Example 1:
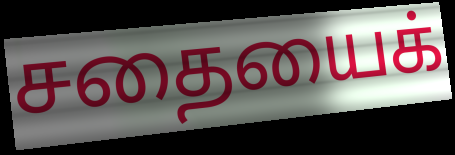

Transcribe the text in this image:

சதையைக்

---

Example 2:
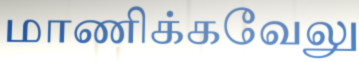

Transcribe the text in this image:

மாணிக்கவேலு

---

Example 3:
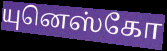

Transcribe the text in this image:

யுனெஸ்கோ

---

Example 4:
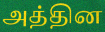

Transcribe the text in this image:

அத்தின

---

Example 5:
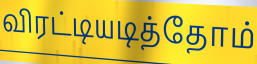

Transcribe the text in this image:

விரட்டியடித்தோம்